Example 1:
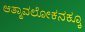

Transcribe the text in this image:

ಆತ್ಮಾವಲೋಕನಕ್ಕೂ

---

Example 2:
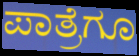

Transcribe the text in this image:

ಪಾತ್ರೆಗೂ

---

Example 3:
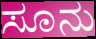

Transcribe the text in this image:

ಸೂನು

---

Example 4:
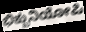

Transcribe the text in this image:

ಭಿಕ್ಖುನಿಯೋಪಿ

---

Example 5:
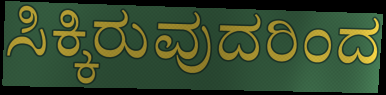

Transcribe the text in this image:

ಸಿಕ್ಕಿರುವುದರಿಂದ